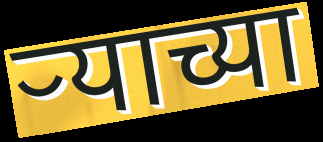
ऱ्याच्या